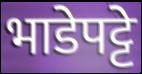
भाडेपट्टे